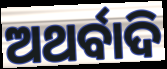
ଅଥର୍ବାଦି